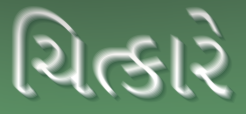
ચિત્કારે